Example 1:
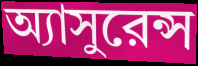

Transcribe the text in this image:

অ্যাসুরেন্স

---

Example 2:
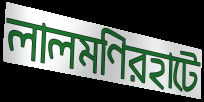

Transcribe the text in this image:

লালমণিরহাটে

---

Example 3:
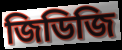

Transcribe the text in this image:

জিডিজি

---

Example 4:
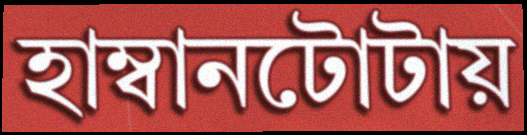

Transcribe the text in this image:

হাম্বানটোটায়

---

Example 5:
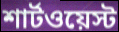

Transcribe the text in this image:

শার্টওয়েস্ট